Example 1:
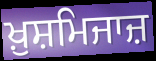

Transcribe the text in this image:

ਖ਼ੁਸ਼ਮਿਜਾਜ਼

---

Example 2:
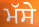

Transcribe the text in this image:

ਮੱਸੇ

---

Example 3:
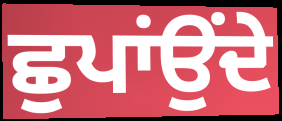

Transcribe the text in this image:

ਛੁਪਾਂਉਂਦੇ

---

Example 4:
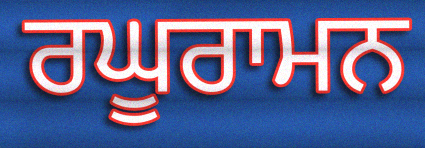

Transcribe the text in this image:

ਰਘੂਰਾਮਨ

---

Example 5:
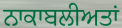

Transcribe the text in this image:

ਨਾਕਾਬਲੀਅਤਾਂ